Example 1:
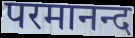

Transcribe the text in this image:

परमानन्‍द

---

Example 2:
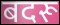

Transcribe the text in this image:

बदरू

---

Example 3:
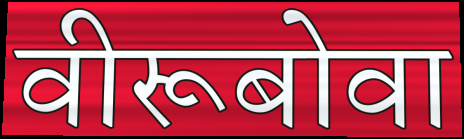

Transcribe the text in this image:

वीरूबोवा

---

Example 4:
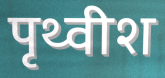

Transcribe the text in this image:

पृथ्वीश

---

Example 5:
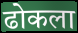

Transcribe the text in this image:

ढोकला